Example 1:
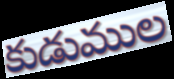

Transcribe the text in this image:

కుడుముల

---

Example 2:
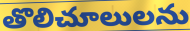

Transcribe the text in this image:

తొలిచూలులను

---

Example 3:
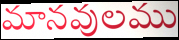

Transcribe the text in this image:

మానవులము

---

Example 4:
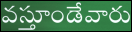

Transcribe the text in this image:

వస్తూండేవారు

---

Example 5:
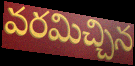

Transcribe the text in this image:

వరమిచ్చిన